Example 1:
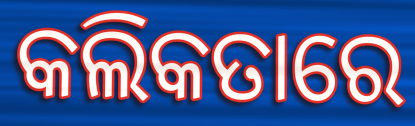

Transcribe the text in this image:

କଲିକତାରେ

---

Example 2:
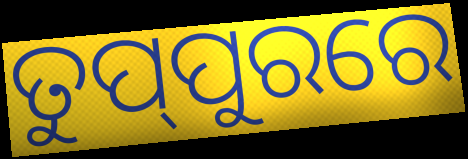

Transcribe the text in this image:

ତୁପ୍‌ପୁରରେ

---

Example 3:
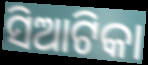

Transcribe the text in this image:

ସିଆଟିକା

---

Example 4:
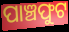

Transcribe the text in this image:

ପାଞ୍ଚଫୁଟ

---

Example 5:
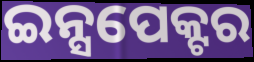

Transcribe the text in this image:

ଇନ୍ସପେକ୍ଟର